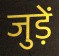
जुड़ें